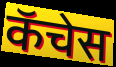
कॅचेस